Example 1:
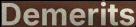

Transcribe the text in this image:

Demerits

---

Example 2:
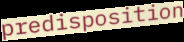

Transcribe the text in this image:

predisposition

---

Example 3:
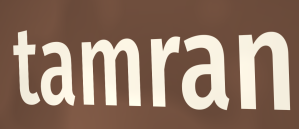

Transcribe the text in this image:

tamran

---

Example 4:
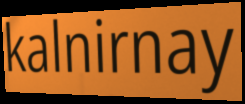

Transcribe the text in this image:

kalnirnay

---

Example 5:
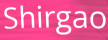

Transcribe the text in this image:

Shirgao